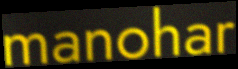
manohar